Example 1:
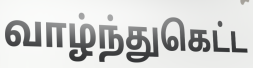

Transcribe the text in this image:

வாழ்ந்துகெட்ட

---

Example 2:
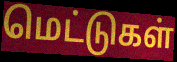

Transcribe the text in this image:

மெட்டுகள்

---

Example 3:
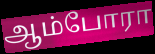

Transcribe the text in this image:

ஆம்போரா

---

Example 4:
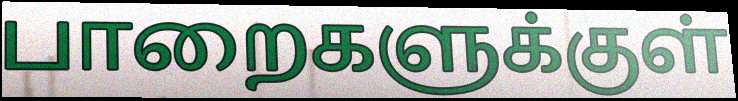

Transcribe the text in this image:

பாறைகளுக்குள்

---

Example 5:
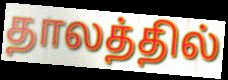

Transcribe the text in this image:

தாலத்தில்